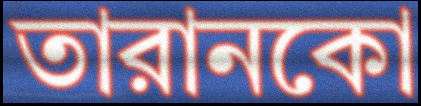
তারানকো